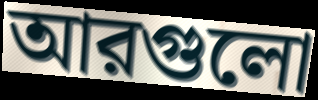
আরগুলো